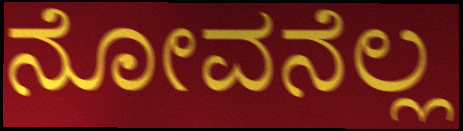
ನೋವನೆಲ್ಲ